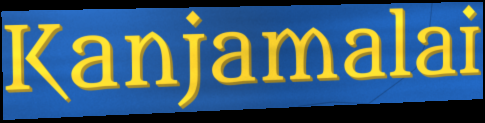
Kanjamalai